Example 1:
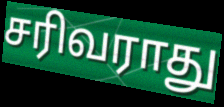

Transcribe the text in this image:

சரிவராது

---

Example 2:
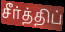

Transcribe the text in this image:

சீர்த்திப்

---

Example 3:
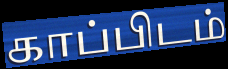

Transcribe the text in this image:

காப்பிடம்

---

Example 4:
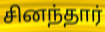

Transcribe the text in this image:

சினந்தார்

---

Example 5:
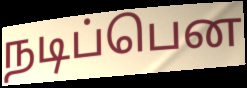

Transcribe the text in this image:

நடிப்பென